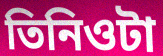
তিনিওটা